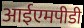
आईएमपीडी